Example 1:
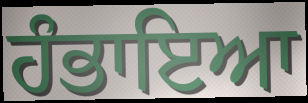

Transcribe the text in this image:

ਹੰਭਾਇਆ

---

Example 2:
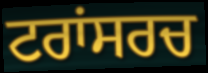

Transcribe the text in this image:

ਟਰਾਂਸਰਚ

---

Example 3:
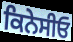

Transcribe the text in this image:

ਕਿਨੇਸੀਓ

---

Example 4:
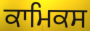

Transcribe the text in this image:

ਕਾਮਿਕਸ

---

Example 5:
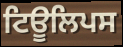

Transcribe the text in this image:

ਟਿਊਲਿਪਸ